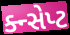
ક્ન્સેપ્ટ